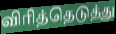
விரித்தெடுத்து